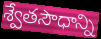
శ్వేతసౌధాన్ని